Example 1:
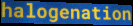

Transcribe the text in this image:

halogenation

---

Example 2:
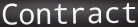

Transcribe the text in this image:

Contract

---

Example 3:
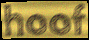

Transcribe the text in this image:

hoof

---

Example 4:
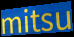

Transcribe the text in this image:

mitsu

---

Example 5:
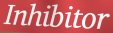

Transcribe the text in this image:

Inhibitor